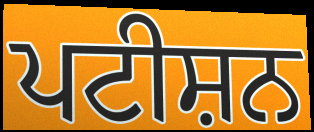
ਪਟੀਸ਼ਨ